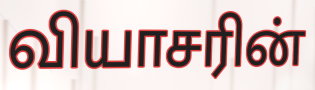
வியாசரின்